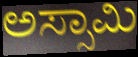
ಅಸ್ಸಾಮಿ